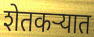
शेतकऱ्यात